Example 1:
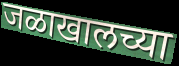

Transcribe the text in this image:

जळाखालच्या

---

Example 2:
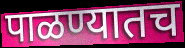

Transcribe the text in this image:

पाळण्यातच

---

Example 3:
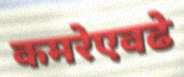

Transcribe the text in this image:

कमरेएवढे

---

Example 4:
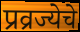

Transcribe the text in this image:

प्रव्रज्येचे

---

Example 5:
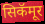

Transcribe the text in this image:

सिकॅमूर